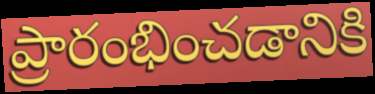
ప్రారంభించడానికి